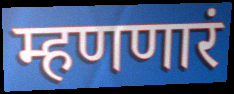
म्हणणारं